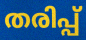
തരിപ്പ്